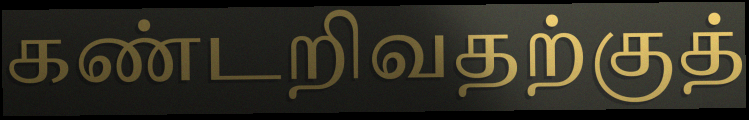
கண்டறிவதற்குத்